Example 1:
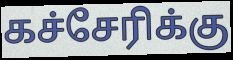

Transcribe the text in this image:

கச்சேரிக்கு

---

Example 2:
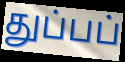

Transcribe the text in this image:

துப்பப்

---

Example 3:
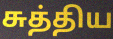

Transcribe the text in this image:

சுத்திய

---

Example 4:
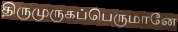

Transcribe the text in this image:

திருமுருகப்பெருமானே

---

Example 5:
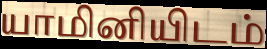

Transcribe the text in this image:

யாமினியிடம்